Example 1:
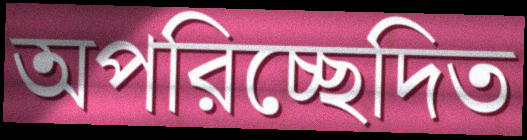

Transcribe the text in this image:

অপরিচ্ছেদিত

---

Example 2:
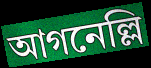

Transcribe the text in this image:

আগনেল্লি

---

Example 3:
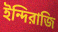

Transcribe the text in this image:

ইন্দিরাজি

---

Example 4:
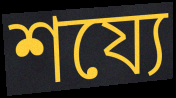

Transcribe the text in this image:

শয্যে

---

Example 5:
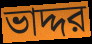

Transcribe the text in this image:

ভাদ্দর